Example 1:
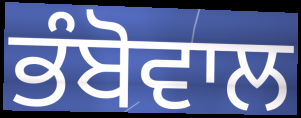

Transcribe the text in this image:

ਭੰਬੋਵਾਲ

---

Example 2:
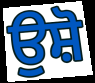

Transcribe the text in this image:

ਉਸ਼ੋ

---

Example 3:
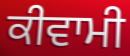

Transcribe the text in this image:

ਕੀਵਾਮੀ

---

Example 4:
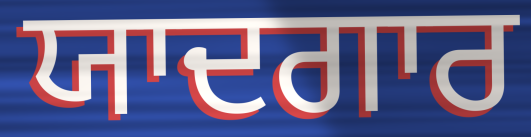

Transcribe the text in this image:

ਯਾਦਗਾਰ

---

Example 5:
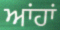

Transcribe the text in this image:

ਆਂਹਾਂ